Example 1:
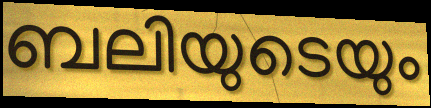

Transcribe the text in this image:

ബലിയുടെയും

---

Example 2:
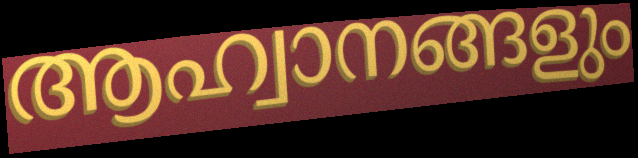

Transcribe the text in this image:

ആഹ്വാനങ്ങളും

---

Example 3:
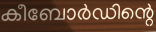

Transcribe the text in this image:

കീബോർഡിന്റെ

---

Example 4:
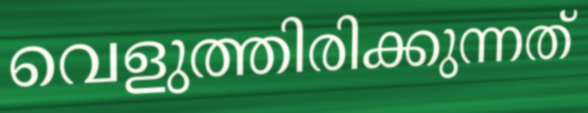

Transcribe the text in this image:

വെളുത്തിരിക്കുന്നത്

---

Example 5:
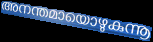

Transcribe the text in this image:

അനന്തമായൊഴുകുന്നൂ